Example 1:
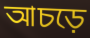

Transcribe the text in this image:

আচড়ে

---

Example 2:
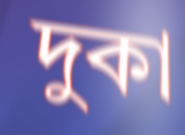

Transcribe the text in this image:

দুকা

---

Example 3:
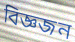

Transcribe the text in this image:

বিজ্ঞজন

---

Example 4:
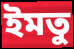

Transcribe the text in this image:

ইমতু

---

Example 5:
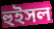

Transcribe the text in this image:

হুইসল